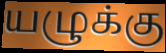
யழுக்கு